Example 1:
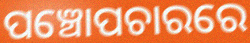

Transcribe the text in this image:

ପଞ୍ଚୋପଚାରରେ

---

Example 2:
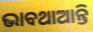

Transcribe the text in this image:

ଭାବଥାଆନ୍ତି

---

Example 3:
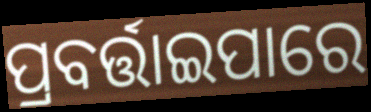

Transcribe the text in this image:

ପ୍ରବର୍ତ୍ତାଇପାରେ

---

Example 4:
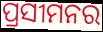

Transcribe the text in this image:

ପ୍ରସୀମନର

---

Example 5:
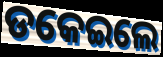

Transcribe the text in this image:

ଡକେଇଲେ